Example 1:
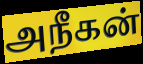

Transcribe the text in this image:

அநீகன்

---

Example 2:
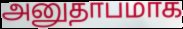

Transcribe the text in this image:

அனுதாபமாக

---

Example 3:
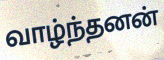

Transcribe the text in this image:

வாழ்ந்தனன்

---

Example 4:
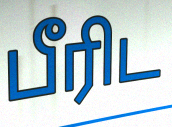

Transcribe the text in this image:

பீரிட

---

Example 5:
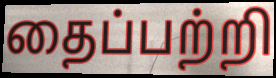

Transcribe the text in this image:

தைப்பற்றி